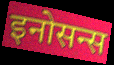
इनोसन्स